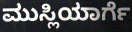
ಮುಸ್ಲಿಯಾರ್ಗೆ